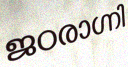
ജഠരാഗ്നി